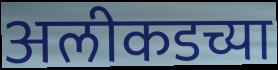
अलीकडच्या